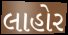
લાહોર